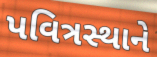
પવિત્રસ્થાને